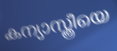
കന്യാസ്ത്രീയെ